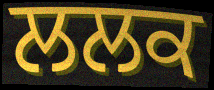
ਲਲਕ